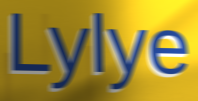
Lylye